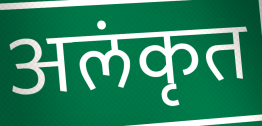
अलंकृत